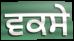
ਵਕਸੇ